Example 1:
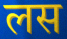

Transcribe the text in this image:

लस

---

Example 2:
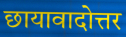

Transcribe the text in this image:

छायावादोत्तर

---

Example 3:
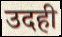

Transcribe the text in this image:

उदही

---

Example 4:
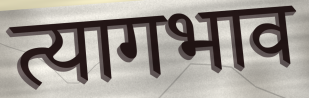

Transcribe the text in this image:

त्यागभाव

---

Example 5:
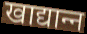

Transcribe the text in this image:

खाद्यान्‍न